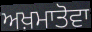
ਅਖ਼ਮਾਤੋਵਾ